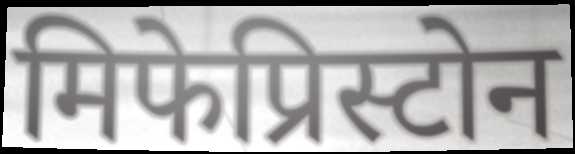
मिफेप्रिस्टोन